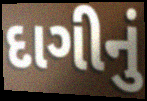
દાગીનું